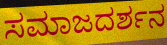
ಸಮಾಜದರ್ಶನ